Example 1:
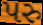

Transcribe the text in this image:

પરુ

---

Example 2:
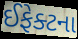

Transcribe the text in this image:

ઈફેક્ટના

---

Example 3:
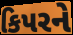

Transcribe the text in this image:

કિપરને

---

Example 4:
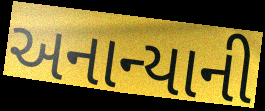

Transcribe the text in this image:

અનાન્યાની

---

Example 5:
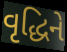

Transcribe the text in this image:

વૃદ્ધિને